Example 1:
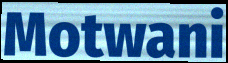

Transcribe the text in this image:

Motwani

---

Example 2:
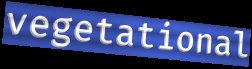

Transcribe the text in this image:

vegetational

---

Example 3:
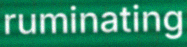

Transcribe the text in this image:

ruminating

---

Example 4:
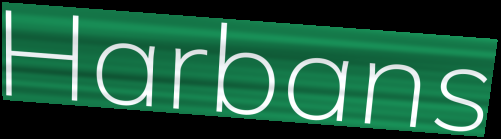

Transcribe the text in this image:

Harbans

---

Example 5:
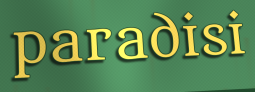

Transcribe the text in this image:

paradisi